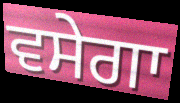
ਵਸੇਗਾ